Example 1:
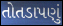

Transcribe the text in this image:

તોતડાપણું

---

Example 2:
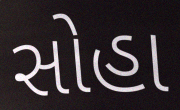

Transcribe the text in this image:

સોહા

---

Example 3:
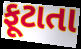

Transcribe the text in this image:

ફૂટાતા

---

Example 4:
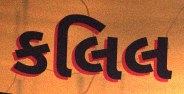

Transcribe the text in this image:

કલિલ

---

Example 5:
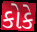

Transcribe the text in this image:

કોકે